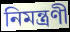
নিমন্ত্ৰণী